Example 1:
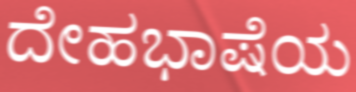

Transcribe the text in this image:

ದೇಹಭಾಷೆಯ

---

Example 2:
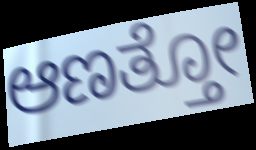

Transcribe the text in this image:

ಆಣತ್ತೋ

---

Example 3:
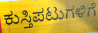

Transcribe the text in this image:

ಕುಸ್ತಿಪಟುಗಳಿಗೆ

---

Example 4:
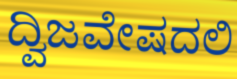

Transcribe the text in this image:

ದ್ವಿಜವೇಷದಲಿ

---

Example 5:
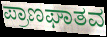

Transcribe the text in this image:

ಪ್ರಾಣಘಾತವ